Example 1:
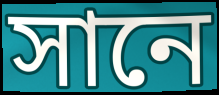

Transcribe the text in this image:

সানে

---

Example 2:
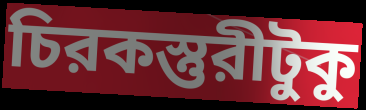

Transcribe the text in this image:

চিরকস্তুরীটুকু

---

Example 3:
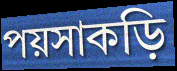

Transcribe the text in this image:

পয়সাকড়ি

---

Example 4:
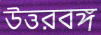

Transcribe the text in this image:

উত্তরবঙ্গ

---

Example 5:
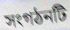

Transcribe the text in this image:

সংগঠনটি